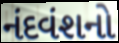
નંદવંશનો